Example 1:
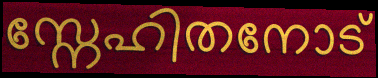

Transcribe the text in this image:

സ്നേഹിതനോട്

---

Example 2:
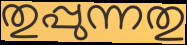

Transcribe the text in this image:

തുപ്പുന്നതു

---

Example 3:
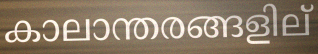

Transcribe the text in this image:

കാലാന്തരങ്ങളില്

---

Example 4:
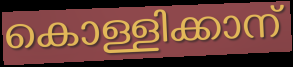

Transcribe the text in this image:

കൊള്ളിക്കാന്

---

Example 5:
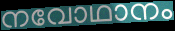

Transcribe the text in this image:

നവോഥാനം